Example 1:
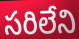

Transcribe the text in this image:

సరిలేని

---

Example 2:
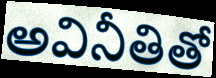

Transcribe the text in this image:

అవినీతితో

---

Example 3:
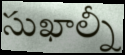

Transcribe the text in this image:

సుఖాల్నీ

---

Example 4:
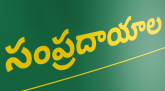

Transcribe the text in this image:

సంప్రదాయాల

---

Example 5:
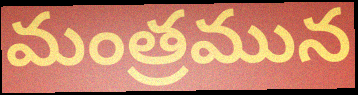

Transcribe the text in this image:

మంత్రమున